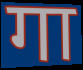
गा